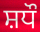
ਸ਼ਧੌ